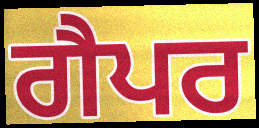
ਗੈਪਰ